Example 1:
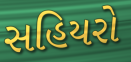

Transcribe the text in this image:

સહિયરો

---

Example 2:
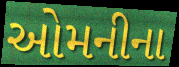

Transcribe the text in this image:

ઓમનીના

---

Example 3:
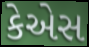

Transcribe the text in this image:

કેએસ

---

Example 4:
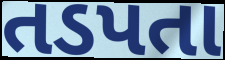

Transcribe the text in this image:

તડપતા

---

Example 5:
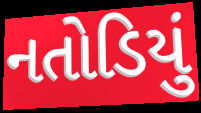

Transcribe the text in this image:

નતોડિયું